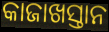
କାଜାଖସ୍ତାନ